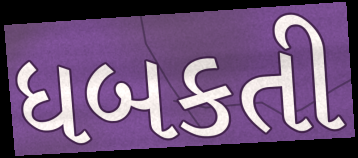
ધબકતી